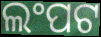
ଲଂପଟ